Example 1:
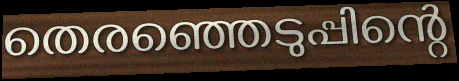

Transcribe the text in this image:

തെരഞ്ഞെടുപ്പിന്റെ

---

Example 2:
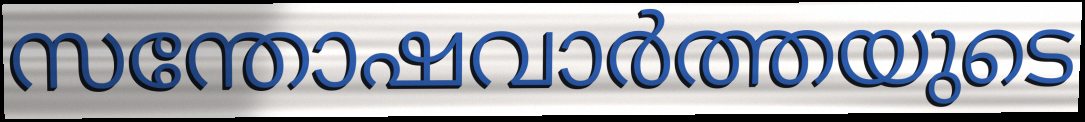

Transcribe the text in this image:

സന്തോഷവാർത്തയുടെ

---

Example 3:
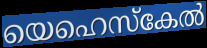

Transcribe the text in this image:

യെഹെസ്കേൽ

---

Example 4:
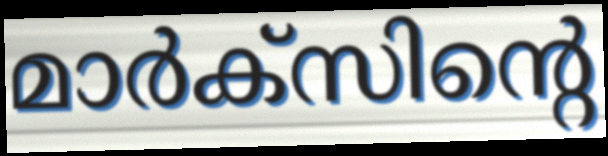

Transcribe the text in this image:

മാർക്സിന്റെ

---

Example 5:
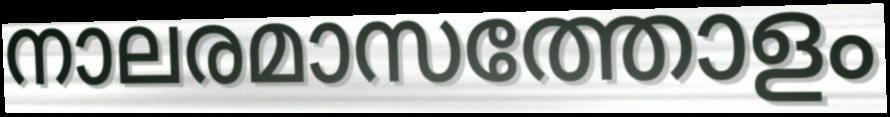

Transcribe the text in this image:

നാലരമാസത്തോളം